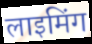
लाइमिंग